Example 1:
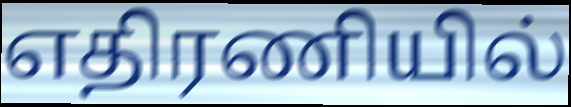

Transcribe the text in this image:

எதிரணியில்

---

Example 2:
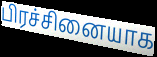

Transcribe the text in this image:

பிரச்சினையாக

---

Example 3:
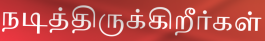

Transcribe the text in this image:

நடித்திருக்கிறீர்கள்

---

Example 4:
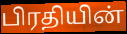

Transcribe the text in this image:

பிரதியின்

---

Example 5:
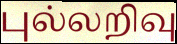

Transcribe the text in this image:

புல்லறிவு